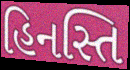
હિનસ્તિ